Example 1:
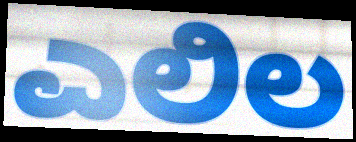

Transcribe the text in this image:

ಎಲಿಲ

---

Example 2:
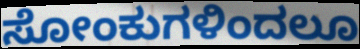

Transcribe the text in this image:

ಸೋಂಕುಗಳಿಂದಲೂ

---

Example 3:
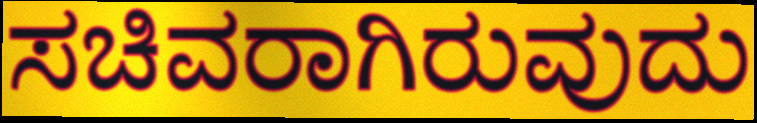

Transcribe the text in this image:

ಸಚಿವರಾಗಿರುವುದು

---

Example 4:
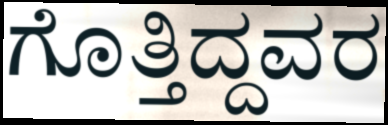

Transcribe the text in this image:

ಗೊತ್ತಿದ್ದವರ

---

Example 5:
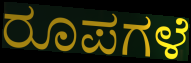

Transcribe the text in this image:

ರೂಪಗಳೆ